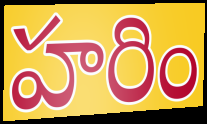
హరిం